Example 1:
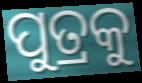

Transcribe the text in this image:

ପୁତ୍ରକୁ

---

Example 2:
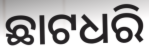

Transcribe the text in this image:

ଛାଟଧରି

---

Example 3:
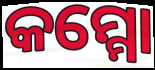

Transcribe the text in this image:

କମ୍ମୋ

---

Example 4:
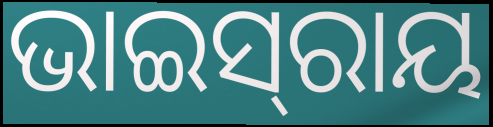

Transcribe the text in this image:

ଭାଇସ୍‍ରାୟ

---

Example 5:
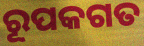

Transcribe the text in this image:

ରୂପକଗତ